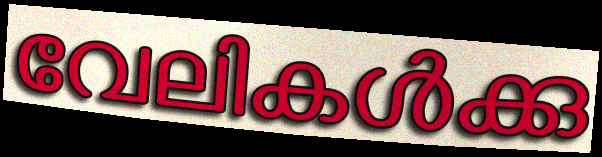
വേലികൾക്കു